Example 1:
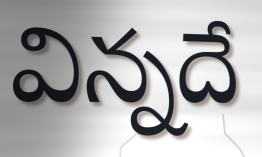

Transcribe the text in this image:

విన్నదే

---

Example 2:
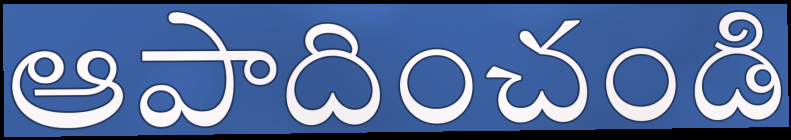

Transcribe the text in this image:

ఆపాదించండి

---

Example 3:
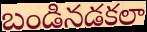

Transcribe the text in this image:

బండినడకలా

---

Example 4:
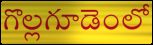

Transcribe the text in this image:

గొల్లగూడెంలో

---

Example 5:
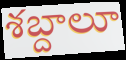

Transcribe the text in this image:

శబ్దాలూ